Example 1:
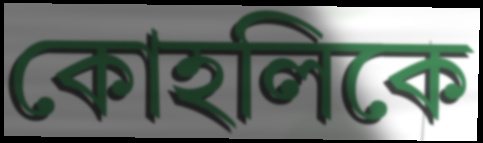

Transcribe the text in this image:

কোহলিকে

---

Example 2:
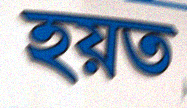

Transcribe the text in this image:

হয়ত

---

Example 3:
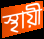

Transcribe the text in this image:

স্থায়ী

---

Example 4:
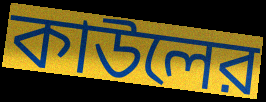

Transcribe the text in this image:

কাউলের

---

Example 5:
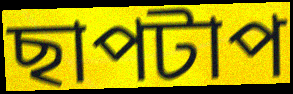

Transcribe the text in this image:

ছাপটাপ